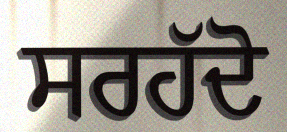
ਸਰਹੱਦੋ